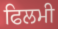
ਫਿਲਮੀ